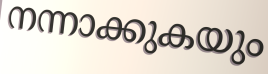
നന്നാക്കുകയും